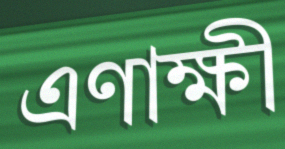
এণাক্ষী